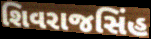
શિવરાજસિંહ